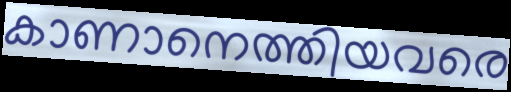
കാണാനെത്തിയവരെ